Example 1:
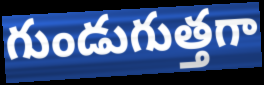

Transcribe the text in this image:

గుండుగుత్తగా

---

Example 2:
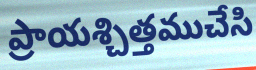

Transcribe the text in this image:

ప్రాయశ్చిత్తముచేసి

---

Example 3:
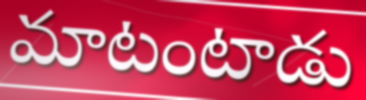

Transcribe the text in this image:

మాటంటాడు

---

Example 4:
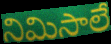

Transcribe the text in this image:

నిమిసాలే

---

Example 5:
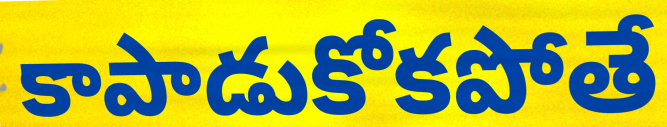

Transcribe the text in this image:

కాపాడుకోకపోతే